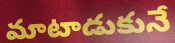
మాటాడుకునే